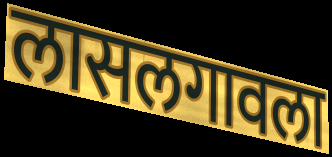
लासलगावला